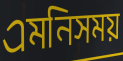
এমনিসময়